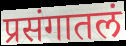
प्रसंगातलं